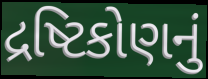
દ્રષ્ટિકોણનું